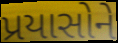
પ્રયાસોને